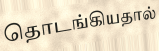
தொடங்கியதால்